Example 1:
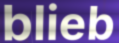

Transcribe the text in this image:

blieb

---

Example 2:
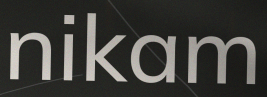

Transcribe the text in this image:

nikam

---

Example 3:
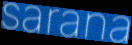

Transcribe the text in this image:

sarana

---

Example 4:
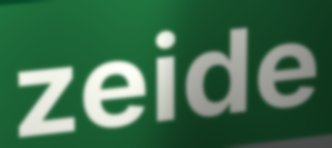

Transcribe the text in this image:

zeide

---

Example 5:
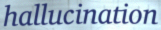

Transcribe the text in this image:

hallucination